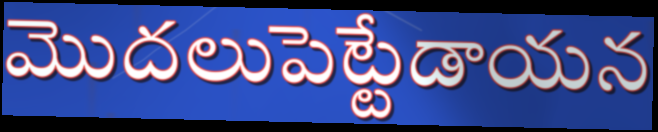
మొదలుపెట్టేడాయన